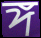
ঙ্গ